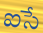
ఐసే